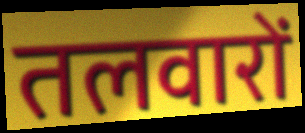
तलवारों